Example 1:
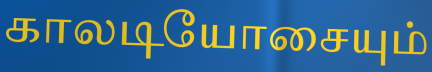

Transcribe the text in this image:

காலடியோசையும்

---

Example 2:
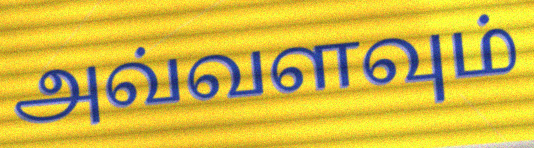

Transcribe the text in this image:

அவ்வளவும்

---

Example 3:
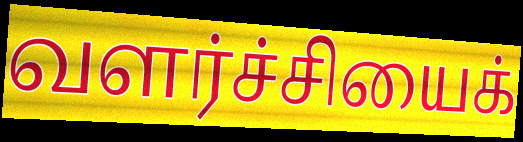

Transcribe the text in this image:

வளர்ச்சியைக்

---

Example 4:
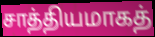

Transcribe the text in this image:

சாத்தியமாகத்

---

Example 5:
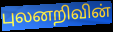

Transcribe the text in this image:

புலனறிவின்